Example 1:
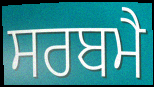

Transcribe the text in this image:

ਸਰਬਮੈ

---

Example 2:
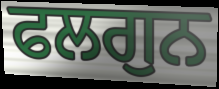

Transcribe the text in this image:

ਫਲਗੁਨ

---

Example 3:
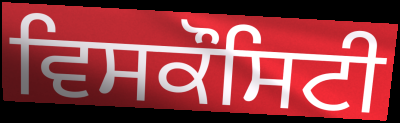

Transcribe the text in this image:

ਵਿਸਕੌਸਿਟੀ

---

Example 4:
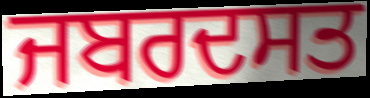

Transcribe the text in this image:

ਜਬਰਦਸਤ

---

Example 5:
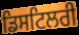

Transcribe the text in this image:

ਡਿਸਟਿਲਰੀ